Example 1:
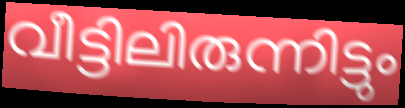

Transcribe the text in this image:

വീട്ടിലിരുന്നിട്ടും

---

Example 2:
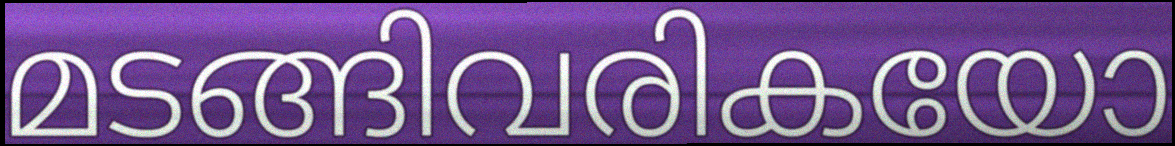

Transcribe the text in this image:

മടങ്ങിവരികയോ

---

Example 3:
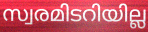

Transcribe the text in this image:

സ്വരമിടറിയില്ല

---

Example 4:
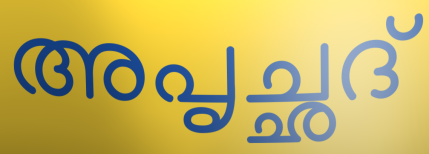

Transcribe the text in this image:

അപൃച്ഛദ്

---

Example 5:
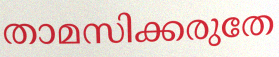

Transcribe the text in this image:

താമസിക്കരുതേ